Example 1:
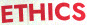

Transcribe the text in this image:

ETHICS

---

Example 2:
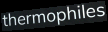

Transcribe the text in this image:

thermophiles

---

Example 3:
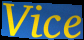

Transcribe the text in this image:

Vice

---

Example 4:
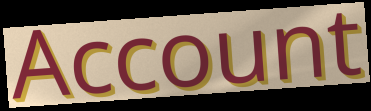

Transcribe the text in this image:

Account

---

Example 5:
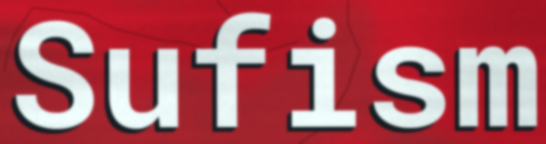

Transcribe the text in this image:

Sufism